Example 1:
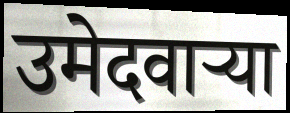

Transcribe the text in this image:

उमेदवाऱ्या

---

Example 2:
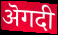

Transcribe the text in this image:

ऄगदी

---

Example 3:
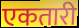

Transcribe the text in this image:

एकतारी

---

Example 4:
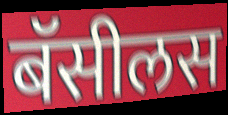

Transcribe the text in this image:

बॅसीलस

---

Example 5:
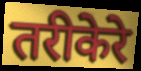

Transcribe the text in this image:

तरीकेरे